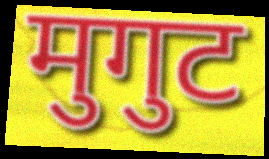
मुगुट